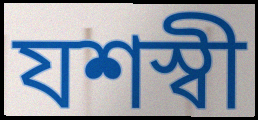
যশস্বী